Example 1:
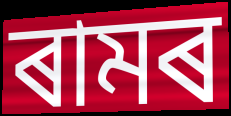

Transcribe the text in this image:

ৰামৰ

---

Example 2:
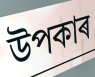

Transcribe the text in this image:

উপকাৰ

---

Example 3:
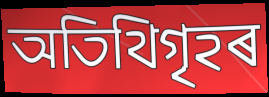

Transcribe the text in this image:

অতিথিগৃহৰ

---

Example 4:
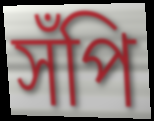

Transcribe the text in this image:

সঁপি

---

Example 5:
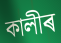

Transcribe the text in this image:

কালীৰ